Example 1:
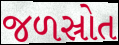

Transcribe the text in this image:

જળસ્રોત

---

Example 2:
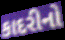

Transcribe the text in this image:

કાદરીનો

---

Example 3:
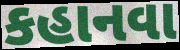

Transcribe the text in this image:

કહાનવા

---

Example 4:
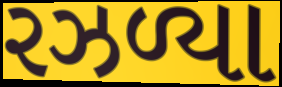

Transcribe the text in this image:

રઝળ્યા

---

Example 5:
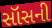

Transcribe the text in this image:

સૉસની